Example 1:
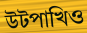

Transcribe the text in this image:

উটপাখিও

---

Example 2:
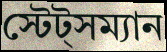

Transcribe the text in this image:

স্টেট্সম্যান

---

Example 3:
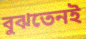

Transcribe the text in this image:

বুঝতেনই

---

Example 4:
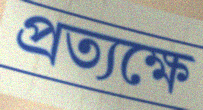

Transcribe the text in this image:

প্রত্যক্ষে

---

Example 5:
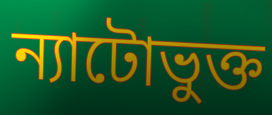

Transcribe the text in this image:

ন্যাটোভুক্ত